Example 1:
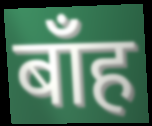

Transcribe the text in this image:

बाँह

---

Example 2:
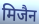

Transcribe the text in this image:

मिजैन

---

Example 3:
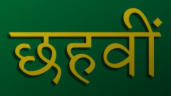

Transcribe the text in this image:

छहवीं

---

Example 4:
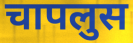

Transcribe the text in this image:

चापलुस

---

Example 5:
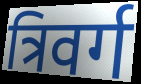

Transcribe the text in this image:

त्रिवर्ग